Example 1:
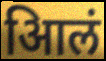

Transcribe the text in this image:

आिलं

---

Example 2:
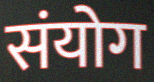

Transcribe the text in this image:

संयोग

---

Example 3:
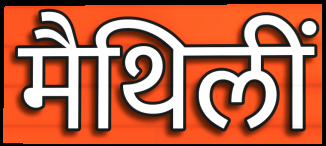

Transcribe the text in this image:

मैथिलीं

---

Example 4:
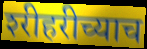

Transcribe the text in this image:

श्रीहरीच्याच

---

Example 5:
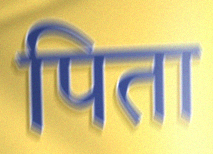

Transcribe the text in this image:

पिता